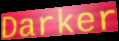
Darker